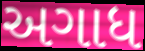
અગાધ